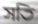
সতি